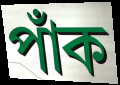
পাঁক